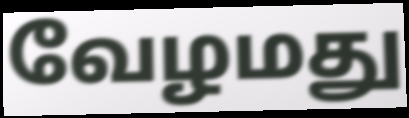
வேழமது